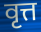
वृत्त